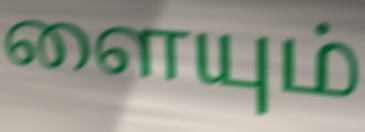
ளையும்